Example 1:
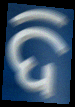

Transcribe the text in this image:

ଦି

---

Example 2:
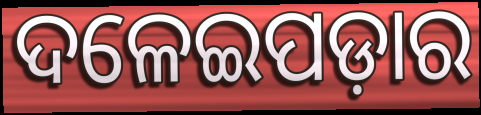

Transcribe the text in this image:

ଦଳେଇପଡ଼ାର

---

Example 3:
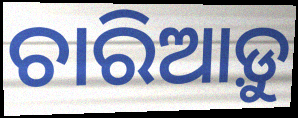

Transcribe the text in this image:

ଚାରିଆଡ଼ୁ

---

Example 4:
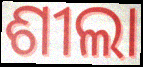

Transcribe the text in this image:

ଶୀଲା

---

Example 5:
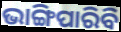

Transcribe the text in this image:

ଭାଙ୍ଗିପାରିବି